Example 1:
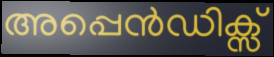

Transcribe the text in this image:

അപ്പെൻഡിക്സ്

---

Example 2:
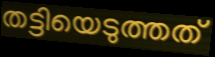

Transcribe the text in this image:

തട്ടിയെടുത്തത്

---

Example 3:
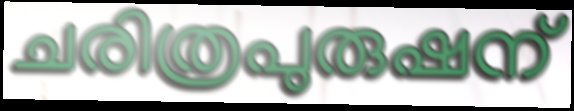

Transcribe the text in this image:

ചരിത്രപുരുഷന്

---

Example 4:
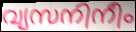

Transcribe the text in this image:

വ്യസനിനീം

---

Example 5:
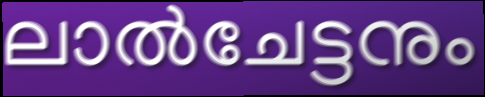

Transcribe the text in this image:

ലാൽചേട്ടനും